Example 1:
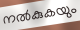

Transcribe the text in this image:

നൽകുകയും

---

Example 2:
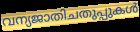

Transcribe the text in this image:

വന്യജാതിചതുപ്പുകൾ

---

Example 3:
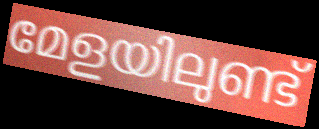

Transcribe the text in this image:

മേളയിലുണ്ട്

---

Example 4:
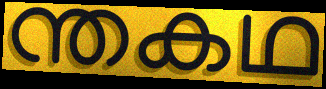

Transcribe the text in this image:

ന്തകഥ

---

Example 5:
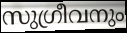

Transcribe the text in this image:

സുഗ്രീവനും